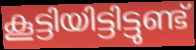
കൂട്ടിയിട്ടിട്ടുണ്ട്